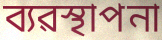
ব্যৱস্থাপনা